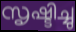
സൃഷ്ടിച്ചു